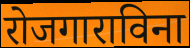
रोजगाराविना